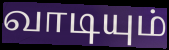
வாடியும்